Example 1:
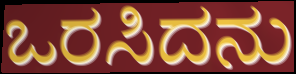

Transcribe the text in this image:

ಒರಸಿದನು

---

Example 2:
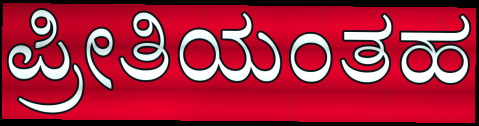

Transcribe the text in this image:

ಪ್ರೀತಿಯಂತಹ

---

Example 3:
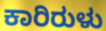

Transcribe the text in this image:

ಕಾರಿರುಳು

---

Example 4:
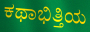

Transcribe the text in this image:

ಕಥಾಭಿತ್ತಿಯ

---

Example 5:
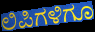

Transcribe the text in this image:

ಲಿಪಿಗಳಿಗೂ